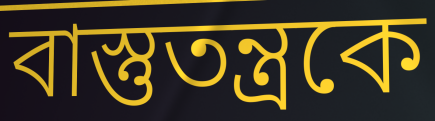
বাস্তুতন্ত্রকে